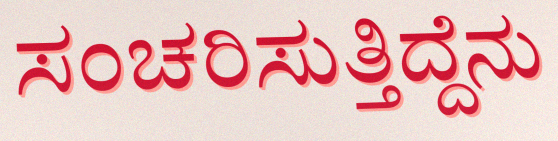
ಸಂಚರಿಸುತ್ತಿದ್ದೆನು